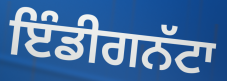
ਇੰਡੀਗਨੱਟਾ